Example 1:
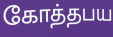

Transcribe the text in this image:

கோத்தபய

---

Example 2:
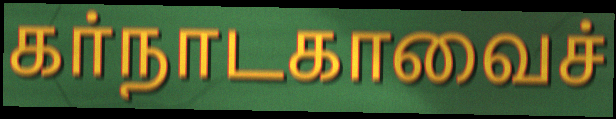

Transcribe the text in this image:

கர்நாடகாவைச்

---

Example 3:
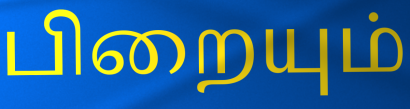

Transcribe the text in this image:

பிறையும்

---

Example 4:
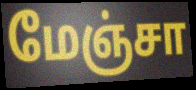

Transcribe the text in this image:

மேஞ்சா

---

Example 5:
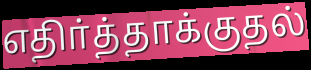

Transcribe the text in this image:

எதிர்த்தாக்குதல்